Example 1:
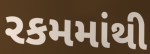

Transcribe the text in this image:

રકમમાંથી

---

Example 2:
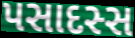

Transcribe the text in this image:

પસાદસ્સ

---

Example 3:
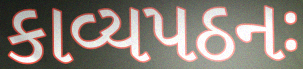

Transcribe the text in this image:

કાવ્યપઠનઃ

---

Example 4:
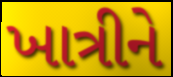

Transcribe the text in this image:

ખાત્રીને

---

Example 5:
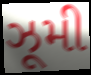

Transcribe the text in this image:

ઝૂમી